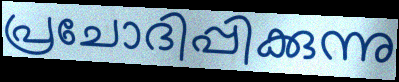
പ്രചോദിപ്പിക്കുന്നു